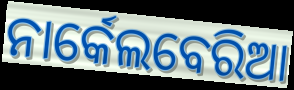
ନାର୍କେଲବେରିଆ